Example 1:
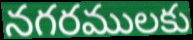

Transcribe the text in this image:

నగరములకు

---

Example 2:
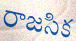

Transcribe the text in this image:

రాజసిక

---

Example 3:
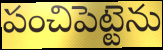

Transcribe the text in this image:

పంచిపెట్టెను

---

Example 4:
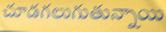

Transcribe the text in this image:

చూడగలుగుతున్నాయి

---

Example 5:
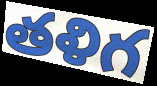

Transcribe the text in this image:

తళిగ